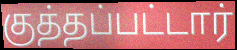
குத்தப்பட்டார்